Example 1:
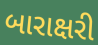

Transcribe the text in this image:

બારાક્ષરી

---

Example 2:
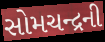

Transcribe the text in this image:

સોમચન્દ્રની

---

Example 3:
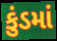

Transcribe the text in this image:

કુંડમાં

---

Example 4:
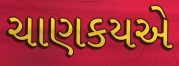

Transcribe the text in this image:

ચાણકયએ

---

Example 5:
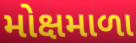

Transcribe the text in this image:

મોક્ષમાળા